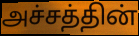
அச்சத்தின்